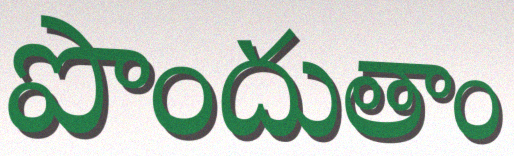
పొందుతాం